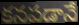
కనపడానే